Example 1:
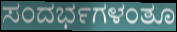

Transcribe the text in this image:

ಸಂದರ್ಭಗಳಂತೂ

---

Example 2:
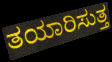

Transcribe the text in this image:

ತಯಾರಿಸುತ್ತ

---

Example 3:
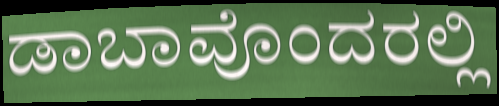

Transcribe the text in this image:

ಡಾಬಾವೊಂದರಲ್ಲಿ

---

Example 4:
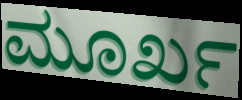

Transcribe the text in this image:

ಮೂರ್ಖ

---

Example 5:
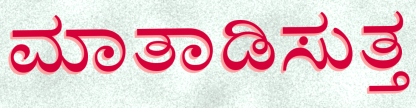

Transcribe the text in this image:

ಮಾತಾಡಿಸುತ್ತ